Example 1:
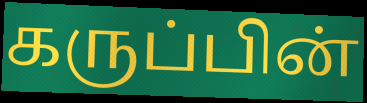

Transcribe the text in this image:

கருப்பின்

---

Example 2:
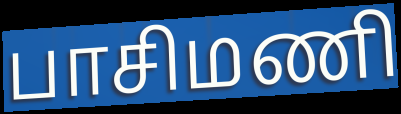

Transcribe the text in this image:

பாசிமணி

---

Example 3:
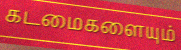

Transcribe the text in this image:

கடமைகளையும்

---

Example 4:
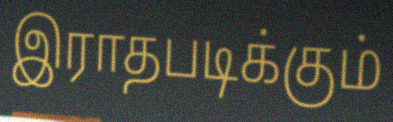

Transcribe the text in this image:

இராதபடிக்கும்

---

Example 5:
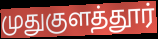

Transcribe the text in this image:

முதுகுளத்தூர்